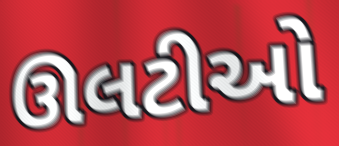
ઊલટીઓ